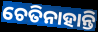
ଚେତିନାହାନ୍ତି